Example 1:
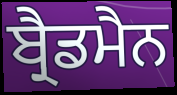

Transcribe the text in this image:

ਬ੍ਰੈਡਮੈਨ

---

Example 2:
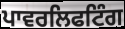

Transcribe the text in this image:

ਪਾਵਰਲਿਫਟਿੰਗ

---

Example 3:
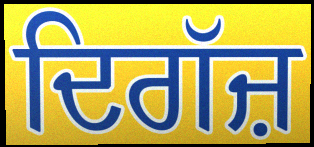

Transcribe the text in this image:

ਦਿਗੱਜ਼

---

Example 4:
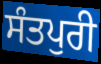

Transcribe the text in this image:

ਸੰਤਪੁਰੀ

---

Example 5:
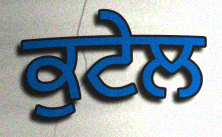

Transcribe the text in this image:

ਕੁਟੇਲ